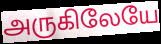
அருகிலேயே